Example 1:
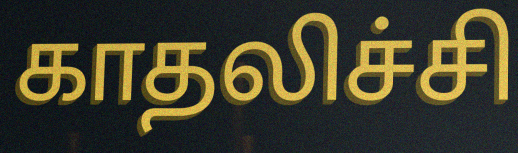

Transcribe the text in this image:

காதலிச்சி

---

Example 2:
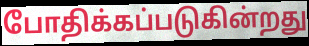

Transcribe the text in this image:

போதிக்கப்படுகின்றது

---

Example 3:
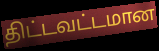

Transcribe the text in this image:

திட்டவட்டமான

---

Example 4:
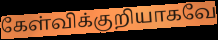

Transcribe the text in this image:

கேள்விக்குறியாகவே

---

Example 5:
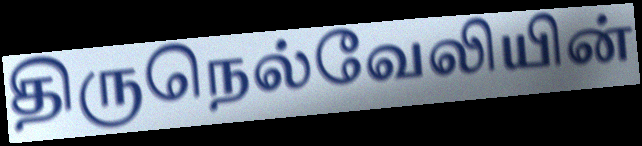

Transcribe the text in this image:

திருநெல்வேலியின்